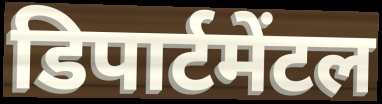
डिपार्टमेंटल